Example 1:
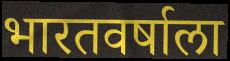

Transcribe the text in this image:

भारतवर्षाला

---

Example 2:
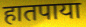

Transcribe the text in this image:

हातपाया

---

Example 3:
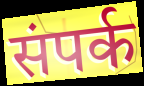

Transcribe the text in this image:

संपर्क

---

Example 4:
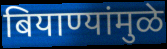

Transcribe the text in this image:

बियाण्यांमुळे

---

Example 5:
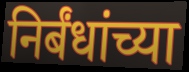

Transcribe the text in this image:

निर्बंधांच्या